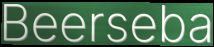
Beerseba